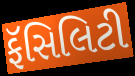
ફૅસિલિટી